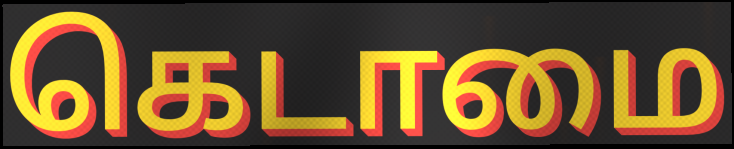
கெடாமை